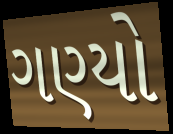
ગણ્યો